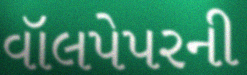
વૉલપેપરની